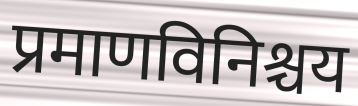
प्रमाणविनिश्चय